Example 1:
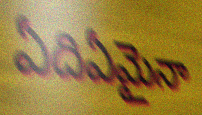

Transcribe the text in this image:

ఏదిఏమైనా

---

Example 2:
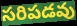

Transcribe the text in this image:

సరిపడవు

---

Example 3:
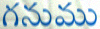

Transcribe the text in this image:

గనుము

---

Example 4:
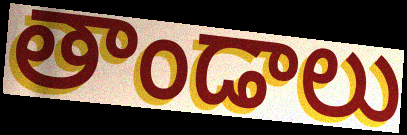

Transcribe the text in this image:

తాండాలు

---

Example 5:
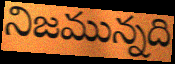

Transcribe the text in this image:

నిజమున్నది